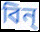
বিন্